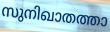
സുനിഖാതത്താ